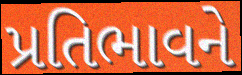
પ્રતિભાવને